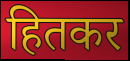
हितकर